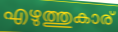
എഴുത്തുകാര്